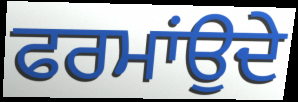
ਫਰਮਾਂਉਦੇ